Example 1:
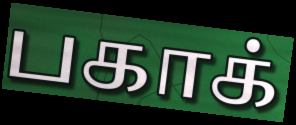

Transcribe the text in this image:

பகாக்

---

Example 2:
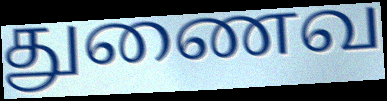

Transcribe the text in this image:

துணைவ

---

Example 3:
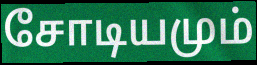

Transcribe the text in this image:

சோடியமும்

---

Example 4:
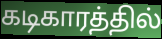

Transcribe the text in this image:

கடிகாரத்தில்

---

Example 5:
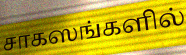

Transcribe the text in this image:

சாகஸங்களில்